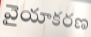
వైయాకరణ